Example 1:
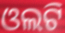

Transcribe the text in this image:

ଓଲଟି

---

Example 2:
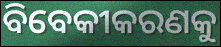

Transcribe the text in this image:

ବିବେକୀକରଣକୁ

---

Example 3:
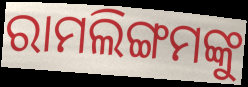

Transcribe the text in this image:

ରାମଲିଙ୍ଗମଙ୍କୁ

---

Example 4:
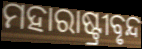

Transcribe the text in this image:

ମହାରାଷ୍ଟ୍ରୀବୃନ୍ଦ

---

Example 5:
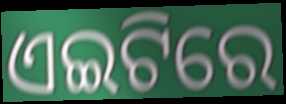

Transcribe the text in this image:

ଏଇଟିରେ